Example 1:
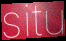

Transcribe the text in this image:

situ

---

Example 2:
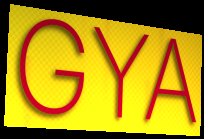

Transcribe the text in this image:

GYA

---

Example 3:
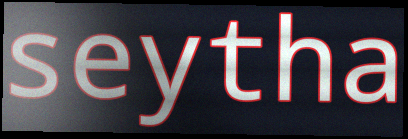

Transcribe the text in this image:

seytha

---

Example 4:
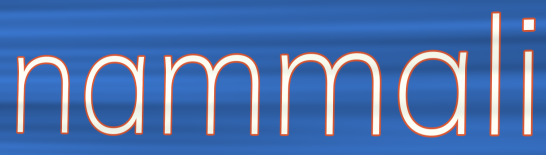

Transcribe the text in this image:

nammali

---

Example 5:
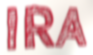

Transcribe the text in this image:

IRA